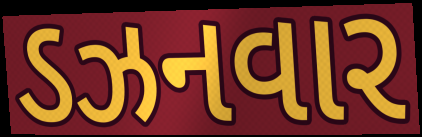
ડઝનવાર